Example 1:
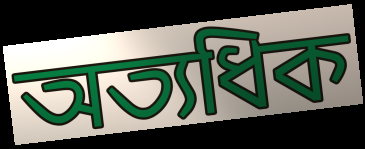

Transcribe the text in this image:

অত্যধিক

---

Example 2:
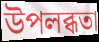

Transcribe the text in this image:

উপলব্ধতা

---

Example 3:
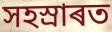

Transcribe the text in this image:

সহস্ৰাৰত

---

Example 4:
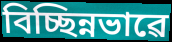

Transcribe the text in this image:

বিচ্ছিন্নভাৱে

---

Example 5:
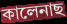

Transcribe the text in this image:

কালেনাছ